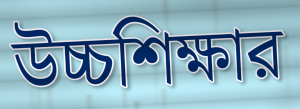
উচ্চশিক্ষার